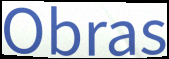
Obras